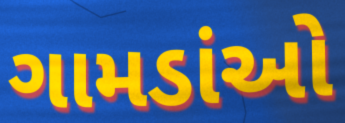
ગામડાંઓ